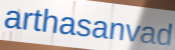
arthasanvad